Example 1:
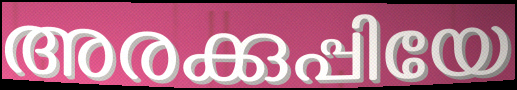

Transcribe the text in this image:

അരക്കുപ്പിയേ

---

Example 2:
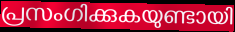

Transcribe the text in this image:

പ്രസംഗിക്കുകയുണ്ടായി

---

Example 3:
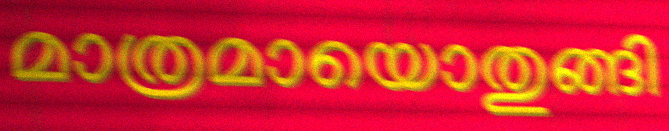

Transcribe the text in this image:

മാത്രമായൊതുങ്ങി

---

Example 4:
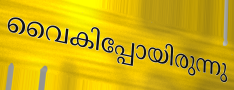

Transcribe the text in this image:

വൈകിപ്പോയിരുന്നു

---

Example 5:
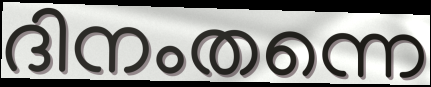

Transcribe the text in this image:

ദിനംതന്നെ